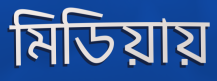
মিডিয়ায়